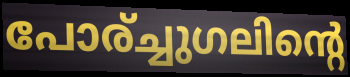
പോര്ച്ചുഗലിന്റെ